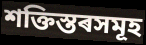
শক্তিস্তৰসমূহ